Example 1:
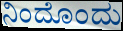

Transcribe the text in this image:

ನಿಂದೊಂದು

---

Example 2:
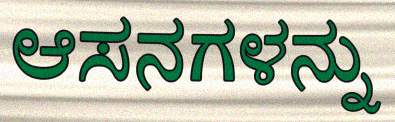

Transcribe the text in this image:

ಆಸನಗಳನ್ನು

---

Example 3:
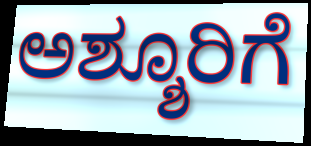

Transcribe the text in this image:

ಅಶ್ಶೂರಿಗೆ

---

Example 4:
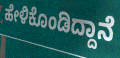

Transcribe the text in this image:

ಹೇಳಿಕೊಂಡಿದ್ದಾನೆ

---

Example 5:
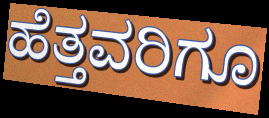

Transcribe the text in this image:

ಹೆತ್ತವರಿಗೂ